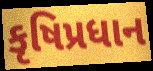
કૃષિપ્રધાન